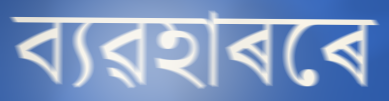
ব্যৱহাৰৰে